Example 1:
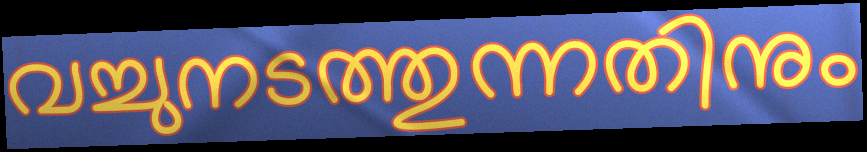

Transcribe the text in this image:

വച്ചുനടത്തുന്നതിനും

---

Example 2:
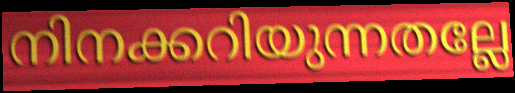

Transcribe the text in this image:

നിനക്കറിയുന്നതല്ലേ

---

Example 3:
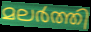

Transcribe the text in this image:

മലർത്തി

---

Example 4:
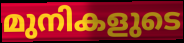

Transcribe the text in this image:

മുനികളുടെ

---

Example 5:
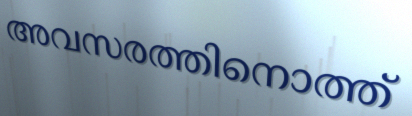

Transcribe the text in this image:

അവസരത്തിനൊത്ത്